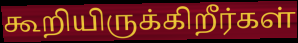
கூறியிருக்கிறீர்கள்